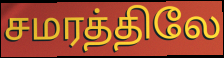
சமரத்திலே